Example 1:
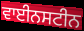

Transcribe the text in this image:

ਵਾਈਨਸਟੀਨ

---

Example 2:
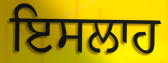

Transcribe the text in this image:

ਇਸਲਾਹ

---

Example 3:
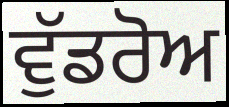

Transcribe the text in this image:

ਵੁੱਡਰੋਅ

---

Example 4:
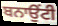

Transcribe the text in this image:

ਬਨਾਉਂਟੀ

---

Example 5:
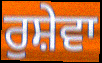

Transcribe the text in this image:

ਰੁਸ਼ੇਵਾ